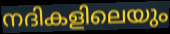
നദികളിലെയും